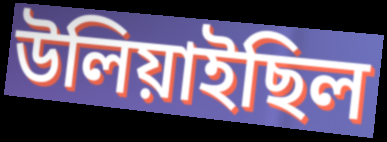
উলিয়াইছিল